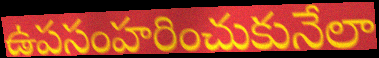
ఉపసంహరించుకునేలా